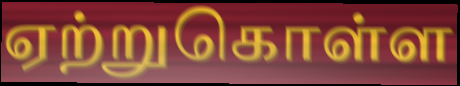
ஏற்றுகொள்ள